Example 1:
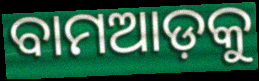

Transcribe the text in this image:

ବାମଆଡ଼କୁ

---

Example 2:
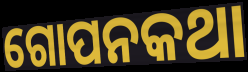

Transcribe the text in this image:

ଗୋପନକଥା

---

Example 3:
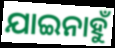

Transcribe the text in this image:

ଯାଇନାହୁଁ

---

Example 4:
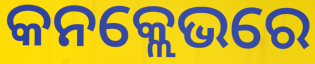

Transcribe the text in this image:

କନକ୍ଲେଭରେ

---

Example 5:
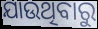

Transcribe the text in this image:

ଯାଉଥିବାରୁ